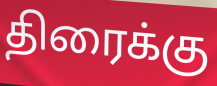
திரைக்கு